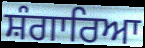
ਸ਼ੰਗਾਰਿਆ